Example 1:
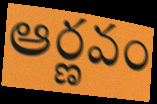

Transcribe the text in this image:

ఆర్ణవం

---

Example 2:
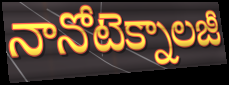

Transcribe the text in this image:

నానోటెక్నాలజీ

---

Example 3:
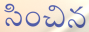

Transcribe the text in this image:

సించిన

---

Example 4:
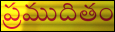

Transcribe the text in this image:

ప్రముదితం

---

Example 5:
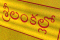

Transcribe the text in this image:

శ్రీలంకల్లో